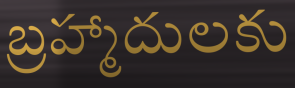
బ్రహ్మాదులకు